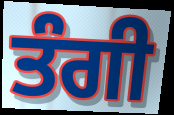
ਤੰਗੀ